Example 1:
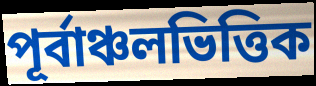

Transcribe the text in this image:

পূর্বাঞ্চলভিত্তিক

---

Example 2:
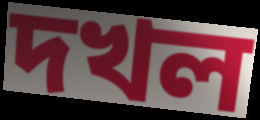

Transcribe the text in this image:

দখল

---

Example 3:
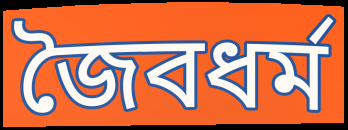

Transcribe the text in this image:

জৈবধর্ম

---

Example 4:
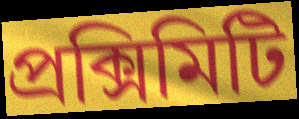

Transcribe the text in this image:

প্রক্সিমিটি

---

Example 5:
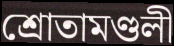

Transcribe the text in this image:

শ্রোতামণ্ডলী